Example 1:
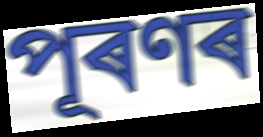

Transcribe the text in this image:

পূৰণৰ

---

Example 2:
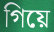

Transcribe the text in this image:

গিয়ে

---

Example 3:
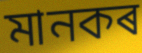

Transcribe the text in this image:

মানকৰ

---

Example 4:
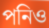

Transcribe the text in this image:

পনিও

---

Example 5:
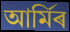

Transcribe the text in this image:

আৰ্মিৰ